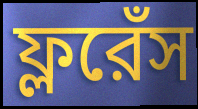
ফ্লরেঁস